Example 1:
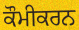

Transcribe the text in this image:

ਕੌਮੀਕਰਨ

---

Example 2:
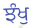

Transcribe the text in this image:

ਝੰਖੁ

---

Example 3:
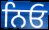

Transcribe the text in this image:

ਨਿਓ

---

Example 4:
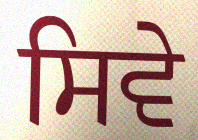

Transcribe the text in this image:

ਸਿਵੇ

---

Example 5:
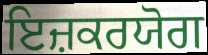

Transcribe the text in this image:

ਇਜ਼ਕਰਯੋਗ